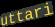
uttari